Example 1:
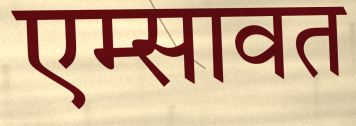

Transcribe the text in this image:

एम्सावत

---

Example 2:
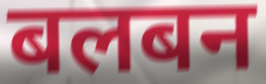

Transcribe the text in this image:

बलबन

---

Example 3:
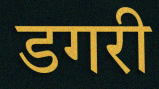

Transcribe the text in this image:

डगरी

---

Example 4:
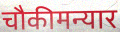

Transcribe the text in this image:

चौकीमन्यार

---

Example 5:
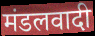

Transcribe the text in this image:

मंडलवादी